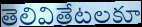
తెలివితేటలకూ